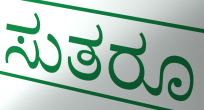
ಸುತರೂ